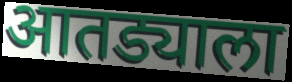
आतड्याला